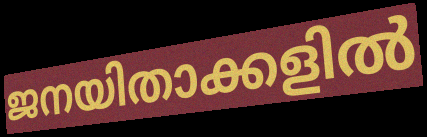
ജനയിതാക്കളിൽ